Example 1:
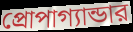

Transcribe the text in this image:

প্রোপাগ্যান্ডার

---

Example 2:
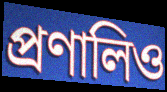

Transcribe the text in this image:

প্রণালিও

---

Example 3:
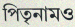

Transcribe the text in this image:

পিতৃনামও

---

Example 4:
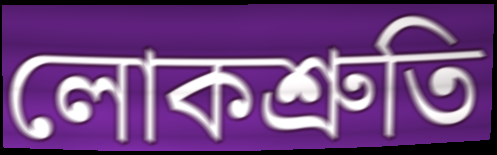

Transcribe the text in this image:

লোকশ্রুতি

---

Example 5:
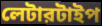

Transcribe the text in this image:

লেটারটাইপ